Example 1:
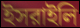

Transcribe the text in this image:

ইসরাইলি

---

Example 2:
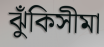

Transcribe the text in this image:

ঝুঁকিসীমা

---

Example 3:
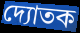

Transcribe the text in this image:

দ্যোতক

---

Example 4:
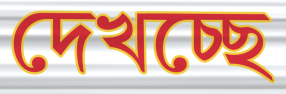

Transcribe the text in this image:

দেখচ্ছে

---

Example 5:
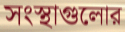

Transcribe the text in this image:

সংস্থাগুলোর